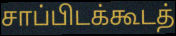
சாப்பிடக்கூடத்